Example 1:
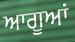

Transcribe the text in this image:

ਆਗੂਆਂ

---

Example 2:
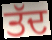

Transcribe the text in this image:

ਤੱਦ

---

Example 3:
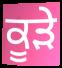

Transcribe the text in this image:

ਕੂਡ਼ੇ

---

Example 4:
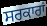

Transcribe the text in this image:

ਸਰਕਾਰਾਂ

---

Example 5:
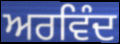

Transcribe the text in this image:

ਅਰਵਿੰਦ